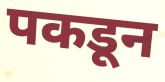
पकडून